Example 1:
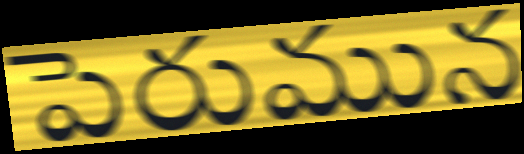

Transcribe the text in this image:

పెరుమున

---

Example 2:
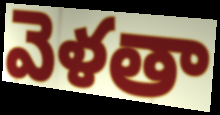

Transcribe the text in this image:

వెళతా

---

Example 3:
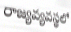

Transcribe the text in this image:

రాజ్యవ్యవస్థలో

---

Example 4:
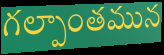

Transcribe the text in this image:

గల్పాంతమున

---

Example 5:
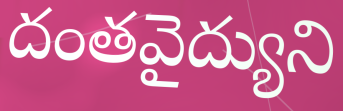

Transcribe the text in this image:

దంతవైద్యుని